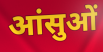
आंसुओं